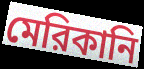
মেরিকানি